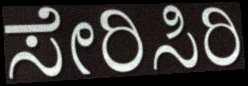
ಸೇರಿಸಿರಿ